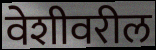
वेशीवरील